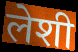
लेशी